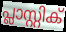
പ്ലാസ്റ്റിക്